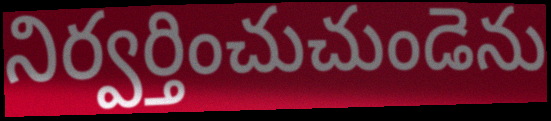
నిర్వర్తించుచుండెను